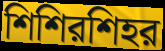
শিশিরশিহর